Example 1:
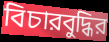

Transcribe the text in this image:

বিচারবুদ্ধির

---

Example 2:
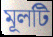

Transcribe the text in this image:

মূলটি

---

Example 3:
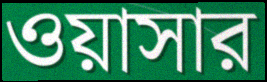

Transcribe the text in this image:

ওয়াসার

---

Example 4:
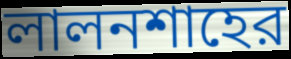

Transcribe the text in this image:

লালনশাহের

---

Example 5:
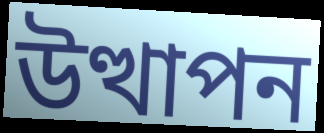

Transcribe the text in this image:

উত্থাপন